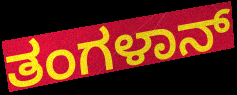
ತಂಗಳಾನ್